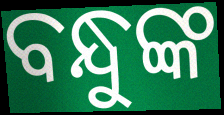
ବନ୍ଧୁଙ୍କ